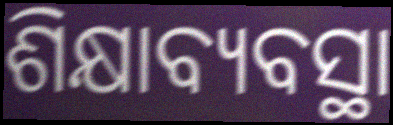
ଶିକ୍ଷାବ୍ୟବସ୍ଥା